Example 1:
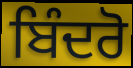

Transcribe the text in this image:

ਬਿੰਦਰੋ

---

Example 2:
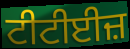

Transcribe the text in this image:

ਟੀਟੀਈਜ਼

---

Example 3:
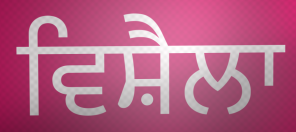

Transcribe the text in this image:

ਵਿਸ਼ੈਲਾ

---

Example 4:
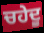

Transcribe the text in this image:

ਚਹੇਦੂ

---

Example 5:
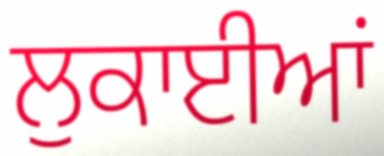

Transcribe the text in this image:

ਲੁਕਾਈਆਂ